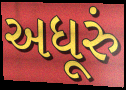
અધૂરું